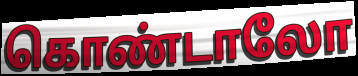
கொண்டாலோ